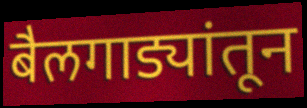
बैलगाड्यांतून